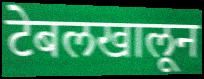
टेबलखालून